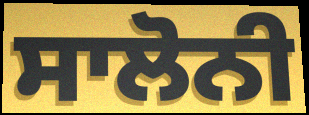
ਸਾਲੋਨੀ